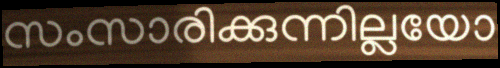
സംസാരിക്കുന്നില്ലയോ